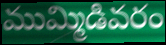
ముమ్మిడివరం